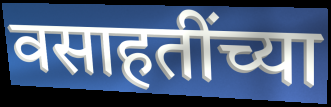
वसाहतींच्या